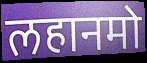
लहानमो